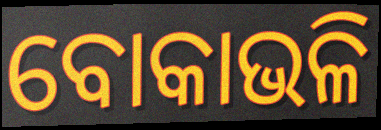
ବୋକାଭଳି